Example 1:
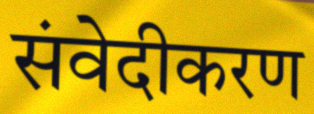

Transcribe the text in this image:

संवेदीकरण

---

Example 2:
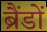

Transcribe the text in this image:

ब्रैंडों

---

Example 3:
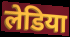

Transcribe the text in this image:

लेडिया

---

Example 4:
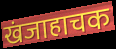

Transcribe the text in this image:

खंजाहाचक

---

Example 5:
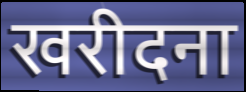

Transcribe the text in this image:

खरीदना